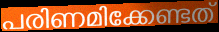
പരിണമിക്കേണ്ടത്